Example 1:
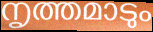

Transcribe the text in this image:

നൃത്തമാടും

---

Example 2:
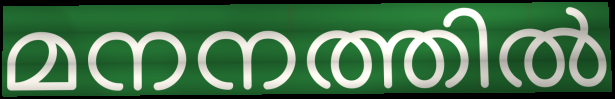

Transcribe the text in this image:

മനനത്തിൽ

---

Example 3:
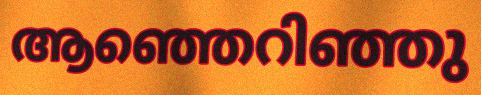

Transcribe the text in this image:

ആഞ്ഞെറിഞ്ഞു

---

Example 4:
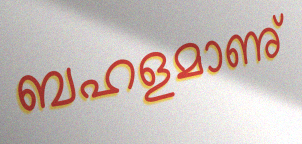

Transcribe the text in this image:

ബഹളമാണു്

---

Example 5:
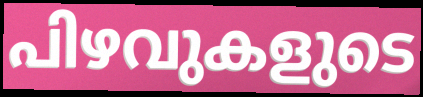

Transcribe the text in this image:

പിഴവുകളുടെ